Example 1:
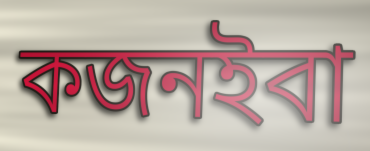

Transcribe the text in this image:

কজনইবা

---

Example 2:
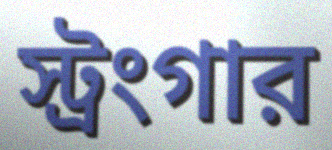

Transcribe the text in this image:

স্ট্রংগার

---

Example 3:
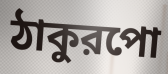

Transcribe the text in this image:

ঠাকুরপো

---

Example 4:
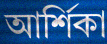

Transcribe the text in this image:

আর্শিকা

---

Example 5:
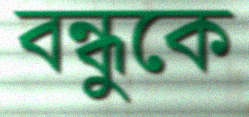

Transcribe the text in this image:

বন্ধুকে